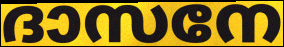
ദാസനേ